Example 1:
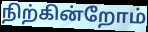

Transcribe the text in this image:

நிற்கின்றோம்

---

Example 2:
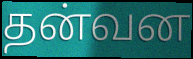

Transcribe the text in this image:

தன்வன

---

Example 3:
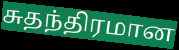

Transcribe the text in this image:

சுதந்திரமான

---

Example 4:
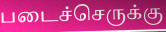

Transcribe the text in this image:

படைச்செருக்கு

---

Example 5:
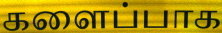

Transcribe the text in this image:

களைப்பாக